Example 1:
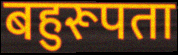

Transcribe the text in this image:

बहुरूपता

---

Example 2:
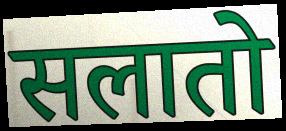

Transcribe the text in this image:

सलातो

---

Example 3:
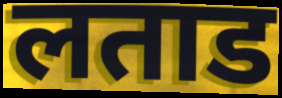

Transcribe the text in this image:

लताड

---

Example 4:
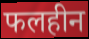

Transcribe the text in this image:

फलहीन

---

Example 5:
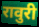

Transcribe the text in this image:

रावुरी